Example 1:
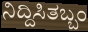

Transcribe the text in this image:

ನಿದ್ದಿಸಿತಬ್ಬಂ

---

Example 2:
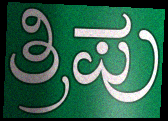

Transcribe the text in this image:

ತ್ರಿಪು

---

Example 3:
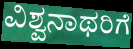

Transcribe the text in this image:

ವಿಶ್ವನಾಥರಿಗೆ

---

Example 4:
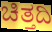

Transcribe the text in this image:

ಚಿತ್ತದಿ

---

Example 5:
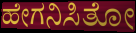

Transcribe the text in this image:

ಹೇಗನಿಸಿತೋ